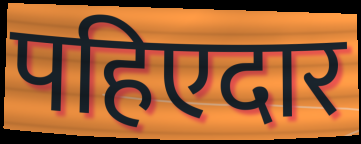
पहिएदार